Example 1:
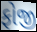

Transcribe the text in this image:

ફોજી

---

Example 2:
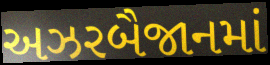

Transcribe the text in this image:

અઝરબૈજાનમાં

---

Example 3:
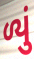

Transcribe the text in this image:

ળ્યું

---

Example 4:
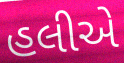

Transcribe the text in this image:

હલીએ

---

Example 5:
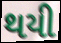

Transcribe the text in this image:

થયી